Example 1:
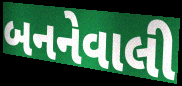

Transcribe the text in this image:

બનનેવાલી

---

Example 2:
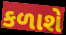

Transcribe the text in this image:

કળાશે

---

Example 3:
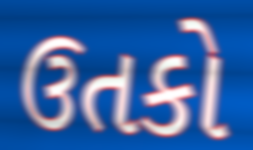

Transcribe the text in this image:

ઉતકો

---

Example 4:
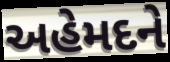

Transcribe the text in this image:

અહેમદને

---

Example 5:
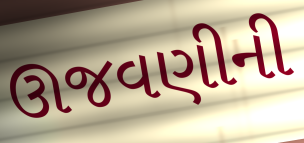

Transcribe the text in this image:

ઊજવણીની